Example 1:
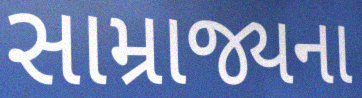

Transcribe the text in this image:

સામ્રાજ્યના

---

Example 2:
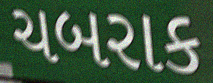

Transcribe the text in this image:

ચબરાક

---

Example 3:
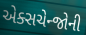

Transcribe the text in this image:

એક્સચેન્જોની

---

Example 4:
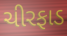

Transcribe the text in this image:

ચીરફાડ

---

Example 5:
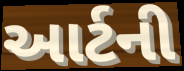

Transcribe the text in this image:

આર્ટની